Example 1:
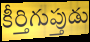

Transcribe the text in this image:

కీర్తిగుప్తుడు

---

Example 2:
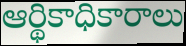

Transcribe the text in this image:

ఆర్థికాధికారాలు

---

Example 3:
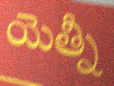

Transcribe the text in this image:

యెత్నీ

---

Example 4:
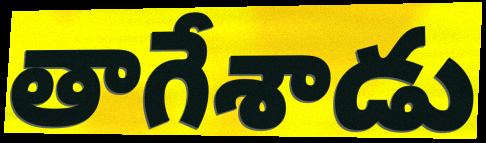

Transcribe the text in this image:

తాగేశాడు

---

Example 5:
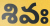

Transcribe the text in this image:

శివః